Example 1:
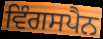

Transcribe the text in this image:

ਵਿੰਗਸਪੈਨ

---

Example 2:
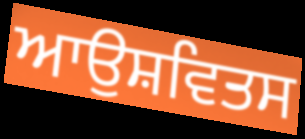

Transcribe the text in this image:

ਆਉਸ਼ਵਿਤਸ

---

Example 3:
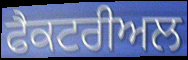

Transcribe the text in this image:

ਫੈਕਟਰੀਅਲ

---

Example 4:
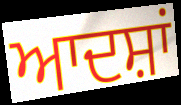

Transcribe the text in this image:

ਆਦਸ਼ਾਂ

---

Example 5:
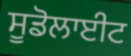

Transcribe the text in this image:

ਸੂਡੋਲਾਈਟ